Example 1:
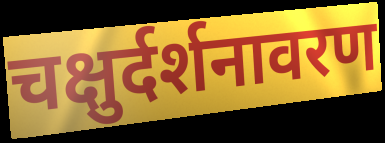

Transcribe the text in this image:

चक्षुर्दर्शनावरण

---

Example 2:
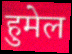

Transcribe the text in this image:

हुमेल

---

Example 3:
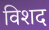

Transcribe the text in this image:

विशद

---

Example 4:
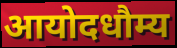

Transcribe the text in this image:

आयोदधौम्य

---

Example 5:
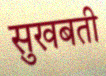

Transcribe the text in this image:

सुखबती